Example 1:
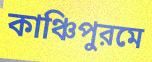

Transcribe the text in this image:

কাঞ্চিপুরমে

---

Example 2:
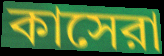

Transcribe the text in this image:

কাসেরা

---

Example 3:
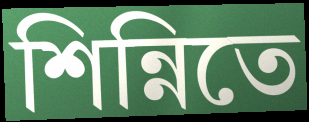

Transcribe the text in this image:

শিন্নিতে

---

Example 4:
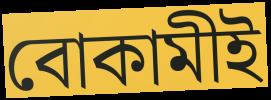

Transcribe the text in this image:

বোকামীই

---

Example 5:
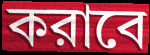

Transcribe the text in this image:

করাবে